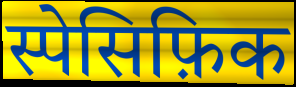
स्पेसिफ़िक